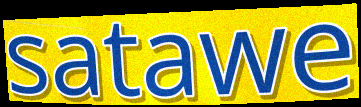
satawe